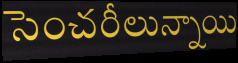
సెంచరీలున్నాయి